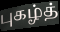
புகழ்த்